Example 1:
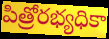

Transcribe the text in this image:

పిత్రోరభ్యధికా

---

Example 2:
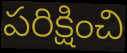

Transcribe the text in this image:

పరిక్షించి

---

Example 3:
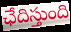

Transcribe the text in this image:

ఛేదిస్తుంది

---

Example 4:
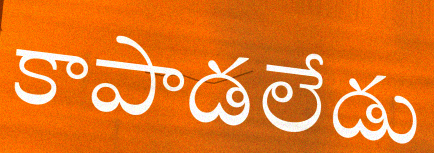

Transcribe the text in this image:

కాపాడలేడు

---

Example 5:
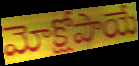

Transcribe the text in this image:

మోక్షోపాయే